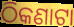
ଠିକଣାଟା